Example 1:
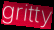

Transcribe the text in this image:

gritty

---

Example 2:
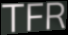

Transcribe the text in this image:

TFR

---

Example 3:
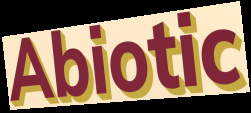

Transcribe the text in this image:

Abiotic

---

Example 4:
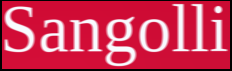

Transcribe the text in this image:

Sangolli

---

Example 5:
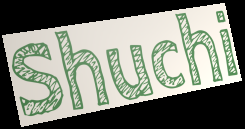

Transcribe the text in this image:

Shuchi